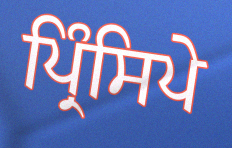
ਪ੍ਰਿੰਸਿਪੇ